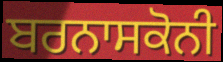
ਬਰਨਾਸਕੋਨੀ